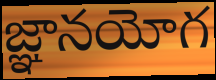
జ్ఞానయోగ